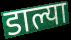
डाल्या